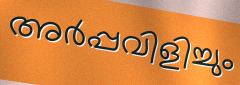
അർപ്പവിളിച്ചും